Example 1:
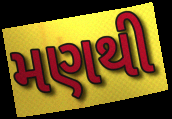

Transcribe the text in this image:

મણથી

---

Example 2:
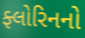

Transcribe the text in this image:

ફ્લોરિનનો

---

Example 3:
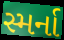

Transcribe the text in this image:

સ્મર્ના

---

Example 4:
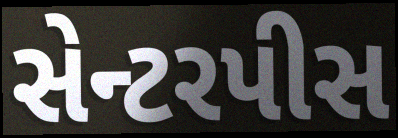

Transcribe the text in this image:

સેન્ટરપીસ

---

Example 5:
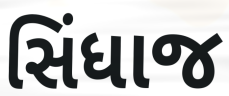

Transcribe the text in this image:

સિંધાજ